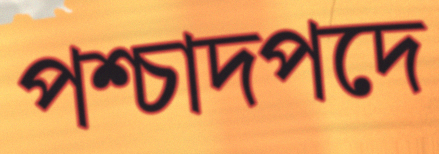
পশ্চাদপদে